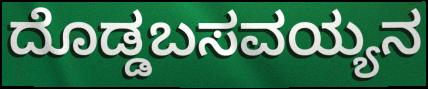
ದೊಡ್ಡಬಸವಯ್ಯನ